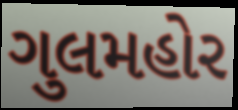
ગુલમહોર